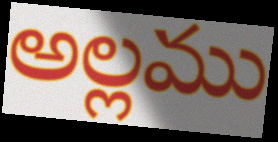
అల్లము